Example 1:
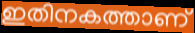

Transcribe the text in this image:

ഇതിനകത്താണ്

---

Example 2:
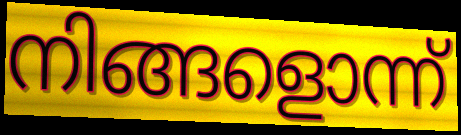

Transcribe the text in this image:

നിങ്ങളൊന്ന്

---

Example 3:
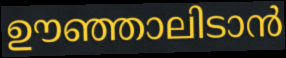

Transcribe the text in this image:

ഊഞ്ഞാലിടാൻ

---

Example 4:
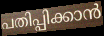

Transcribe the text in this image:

പതിപ്പിക്കാൻ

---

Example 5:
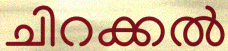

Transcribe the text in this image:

ചിറക്കൽ